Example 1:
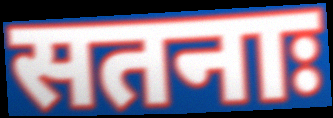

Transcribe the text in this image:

सतनाः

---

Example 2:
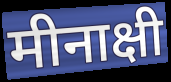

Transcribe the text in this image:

मीनाक्षी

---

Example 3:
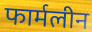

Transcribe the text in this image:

फार्मलीन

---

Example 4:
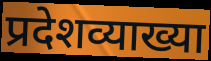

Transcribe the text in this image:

प्रदेशव्याख्या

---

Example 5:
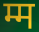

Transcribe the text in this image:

म्म